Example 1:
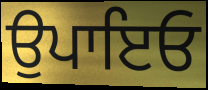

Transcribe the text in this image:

ਉਪਾਇਓ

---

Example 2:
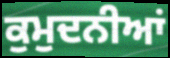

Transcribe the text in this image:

ਕੁਮੁਦਨੀਆਂ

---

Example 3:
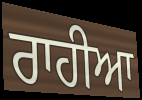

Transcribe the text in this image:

ਰਾਹੀਆ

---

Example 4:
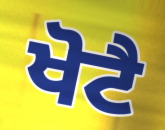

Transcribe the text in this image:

ਖੋਟੈ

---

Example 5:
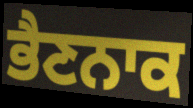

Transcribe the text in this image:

ਭੈਣਨਾਕ